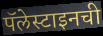
पॅलेस्टाइनची